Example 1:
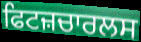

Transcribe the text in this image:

ਫਿਟਜ਼ਚਾਰਲਸ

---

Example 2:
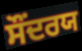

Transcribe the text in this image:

ਸੌਂਦਰਯ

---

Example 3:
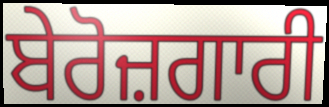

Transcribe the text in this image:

ਬੇਰੋਜ਼ਗਾਰੀ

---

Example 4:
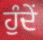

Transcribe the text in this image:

ਹੁੰਦੇਂ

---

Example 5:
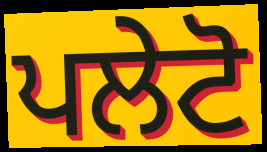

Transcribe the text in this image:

ਪਲੇਟੋ